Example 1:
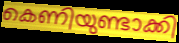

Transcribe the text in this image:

കെണിയുണ്ടാക്കി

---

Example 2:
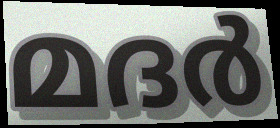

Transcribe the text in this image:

മദർ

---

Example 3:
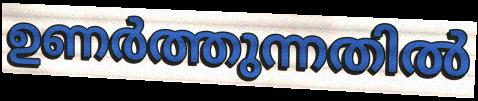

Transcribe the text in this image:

ഉണർത്തുന്നതിൽ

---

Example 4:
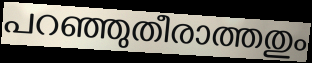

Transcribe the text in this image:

പറഞ്ഞുതീരാത്തതും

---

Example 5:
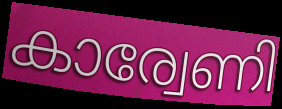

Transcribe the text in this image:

കാര്വേണി